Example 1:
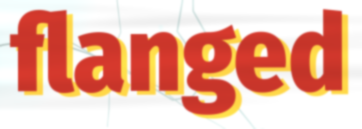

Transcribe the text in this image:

flanged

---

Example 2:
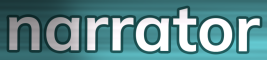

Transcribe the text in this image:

narrator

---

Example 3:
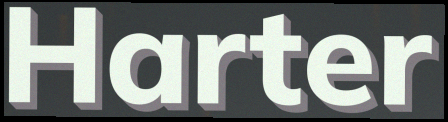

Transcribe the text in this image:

Harter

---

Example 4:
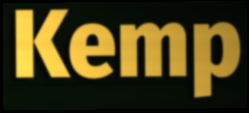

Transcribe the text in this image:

Kemp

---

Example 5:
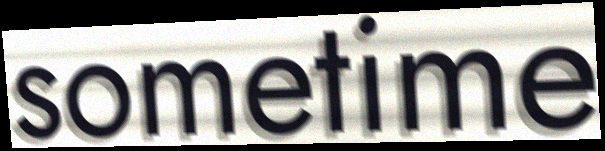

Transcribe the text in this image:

sometime